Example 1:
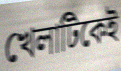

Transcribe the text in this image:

খেলাটিকেই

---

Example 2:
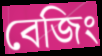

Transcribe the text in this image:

বেজিং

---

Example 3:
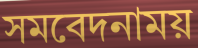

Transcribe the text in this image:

সমবেদনাময়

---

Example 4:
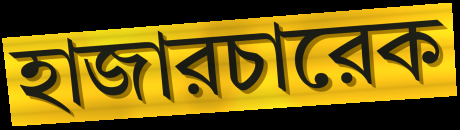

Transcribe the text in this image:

হাজারচারেক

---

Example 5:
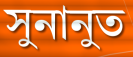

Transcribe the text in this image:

সুনানুত